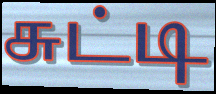
சுட்டி